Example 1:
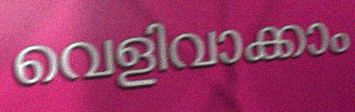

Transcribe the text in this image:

വെളിവാക്കാം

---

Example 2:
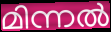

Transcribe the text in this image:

മിന്നൽ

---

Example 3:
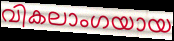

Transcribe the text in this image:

വികലാംഗയായ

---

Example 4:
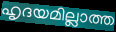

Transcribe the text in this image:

ഹൃദയമില്ലാത്ത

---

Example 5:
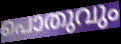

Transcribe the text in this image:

പൊതുവും